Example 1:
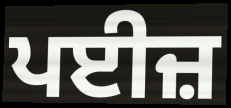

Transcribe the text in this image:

ਪਈਜ਼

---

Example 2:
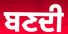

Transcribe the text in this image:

ਬਣਦੀ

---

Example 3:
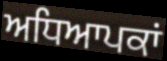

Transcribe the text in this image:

ਅਧਿਆਪਕਾਂ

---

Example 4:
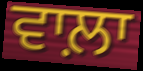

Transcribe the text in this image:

ਵਾਲ਼ਾ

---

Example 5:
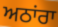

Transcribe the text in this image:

ਅਠਾਂਰਾ